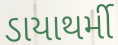
ડાયાથર્મી